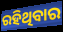
ରହିଥିବାର